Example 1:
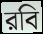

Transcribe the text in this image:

রবি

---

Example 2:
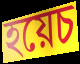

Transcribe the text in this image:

হয়েচ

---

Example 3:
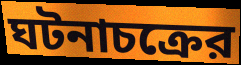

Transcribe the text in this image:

ঘটনাচক্রের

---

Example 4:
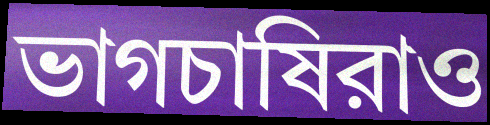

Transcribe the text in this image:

ভাগচাষিরাও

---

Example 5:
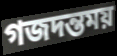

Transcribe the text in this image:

গজদন্তময়